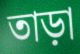
তাড়া